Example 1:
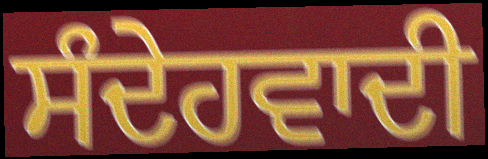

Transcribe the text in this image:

ਸੰਦੇਹਵਾਦੀ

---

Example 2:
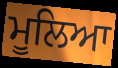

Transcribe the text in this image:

ਮੂਲਿਆ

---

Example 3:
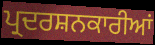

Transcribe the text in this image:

ਪ੍ਰਦਰਸ਼ਨਕਾਰੀਆਂ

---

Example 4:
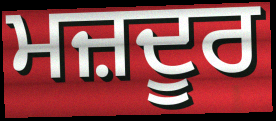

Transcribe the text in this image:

ਮਜ਼ਦੂਰ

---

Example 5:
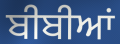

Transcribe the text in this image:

ਬੀਬੀਆਂ